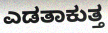
ಎಡತಾಕುತ್ತ